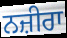
ਨਜ਼ੀਰਾ